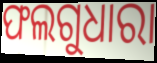
ଫଲଗୁଧାରା